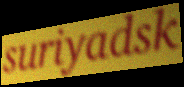
suriyadsk